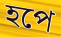
হপে